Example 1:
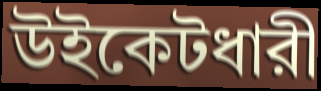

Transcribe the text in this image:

উইকেটধারী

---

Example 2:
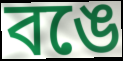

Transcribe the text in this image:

বঙে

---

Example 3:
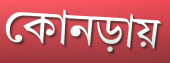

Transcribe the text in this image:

কোনড়ায়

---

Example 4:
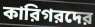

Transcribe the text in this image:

কারিগরদের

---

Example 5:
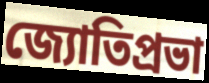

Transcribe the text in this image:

জ্যোতিপ্রভা